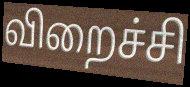
விறைச்சி